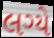
લગ્યે